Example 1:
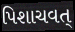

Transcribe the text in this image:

પિશાચવત્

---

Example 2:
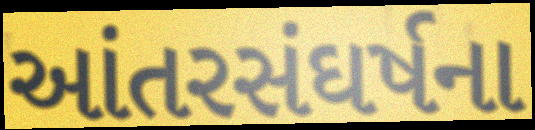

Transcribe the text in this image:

આંતરસંઘર્ષના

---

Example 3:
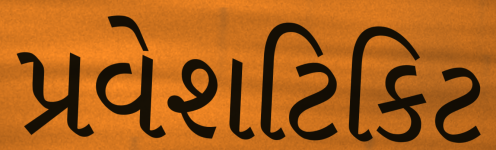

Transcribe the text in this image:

પ્રવેશટિકિટ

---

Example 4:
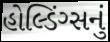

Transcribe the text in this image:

હોલ્ડિંગ્સનું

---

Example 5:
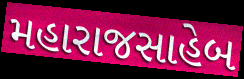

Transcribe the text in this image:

મહારાજસાહેબ